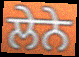
ਲੇਨੇ